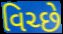
વિચ્છે